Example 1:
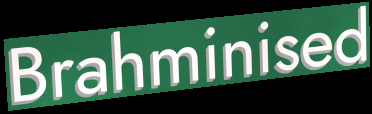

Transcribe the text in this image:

Brahminised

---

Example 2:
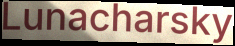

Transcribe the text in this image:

Lunacharsky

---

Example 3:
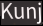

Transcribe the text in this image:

Kunj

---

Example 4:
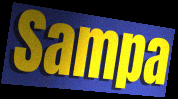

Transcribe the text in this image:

Sampa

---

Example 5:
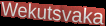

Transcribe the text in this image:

Wekutsvaka